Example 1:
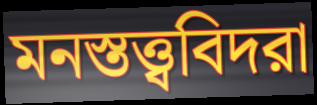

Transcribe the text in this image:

মনস্তত্ত্ববিদরা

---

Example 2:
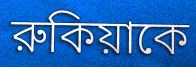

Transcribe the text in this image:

রুকিয়াকে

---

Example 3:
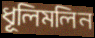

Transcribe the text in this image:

ধূলিমলিন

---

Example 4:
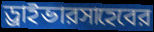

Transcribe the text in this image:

ড্রাইভারসাহেবের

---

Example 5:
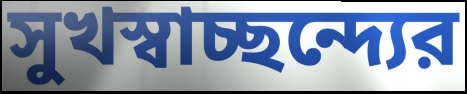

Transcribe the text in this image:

সুখস্বাচ্ছন্দ্যের